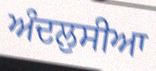
ਅੰਦਲੁਸੀਆ